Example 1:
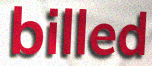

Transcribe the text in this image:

billed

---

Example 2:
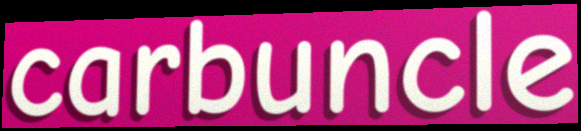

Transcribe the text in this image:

carbuncle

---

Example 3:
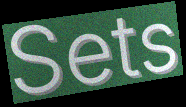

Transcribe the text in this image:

Sets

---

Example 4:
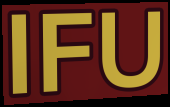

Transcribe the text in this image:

IFU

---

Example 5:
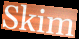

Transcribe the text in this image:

Skim